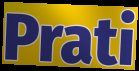
Prati